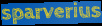
sparverius